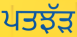
ਪਤਝੱੜ